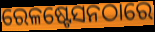
ରେଳଷ୍ଟେସନଠାରେ